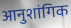
आनुशांगिक